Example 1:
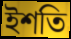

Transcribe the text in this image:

ইশতি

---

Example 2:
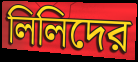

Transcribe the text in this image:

লিলিদের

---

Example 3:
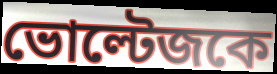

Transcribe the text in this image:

ভোল্টেজকে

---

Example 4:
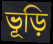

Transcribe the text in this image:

ভূড়ি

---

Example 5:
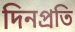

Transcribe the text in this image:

দিনপ্রতি